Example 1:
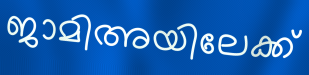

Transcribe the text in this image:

ജാമിഅയിലേക്ക്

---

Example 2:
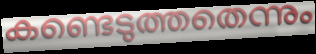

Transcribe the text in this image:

കണ്ടെടുത്തതെന്നും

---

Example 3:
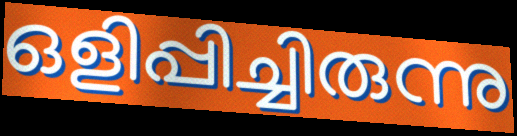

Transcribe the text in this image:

ഒളിപ്പിച്ചിരുന്നു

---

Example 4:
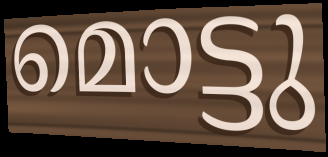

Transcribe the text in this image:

മൊട്ടു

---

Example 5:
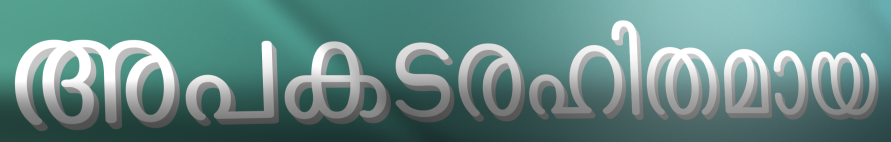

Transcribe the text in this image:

അപകടരഹിതമായ